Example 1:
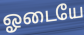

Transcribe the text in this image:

ஓடையே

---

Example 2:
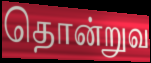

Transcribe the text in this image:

தொன்றுவ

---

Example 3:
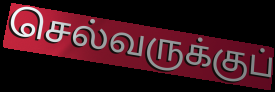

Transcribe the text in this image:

செல்வருக்குப்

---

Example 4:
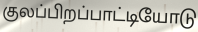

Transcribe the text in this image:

குலப்பிறப்பாட்டியோடு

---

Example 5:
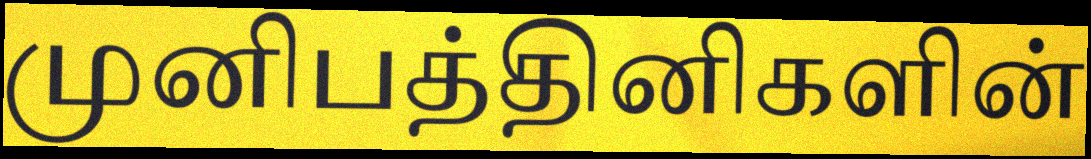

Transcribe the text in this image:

முனிபத்தினிகளின்